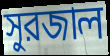
সুরজাল